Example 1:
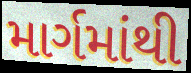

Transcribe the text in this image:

માર્ગમાંથી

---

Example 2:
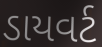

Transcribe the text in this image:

ડાયવર્ટ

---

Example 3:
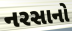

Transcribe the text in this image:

નરસાનો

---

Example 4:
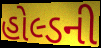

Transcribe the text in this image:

હોલ્ડની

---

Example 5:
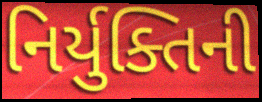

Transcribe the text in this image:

નિર્યુક્તિની